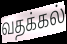
வதக்கல்